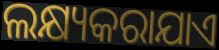
ଲକ୍ଷ୍ୟକରାଯାଏ